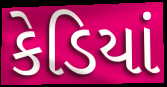
કેડિયાં